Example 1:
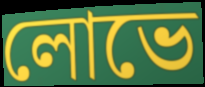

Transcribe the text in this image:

লোভে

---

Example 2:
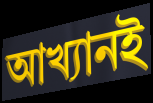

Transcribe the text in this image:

আখ্যানই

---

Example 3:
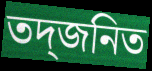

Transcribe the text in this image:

তদ্জনিত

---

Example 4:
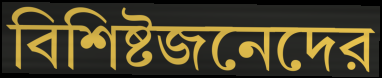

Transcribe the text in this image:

বিশিষ্টজনেদের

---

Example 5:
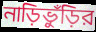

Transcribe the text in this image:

নাড়িভুঁড়ির